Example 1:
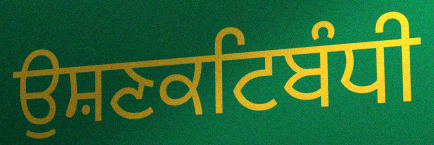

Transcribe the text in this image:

ਉਸ਼ਣਕਟਿਬੰਧੀ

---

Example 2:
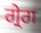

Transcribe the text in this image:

ਗ੍ਰੇਗ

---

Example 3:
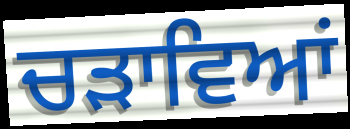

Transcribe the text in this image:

ਚੜਾਵਿਆਂ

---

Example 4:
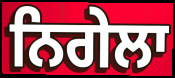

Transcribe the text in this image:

ਨਿਗੇਲਾ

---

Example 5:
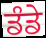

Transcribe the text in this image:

ਡੰਡੇ